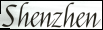
Shenzhen